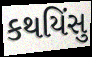
કથયિંસુ